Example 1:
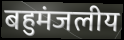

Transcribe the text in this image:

बहुमंजलीय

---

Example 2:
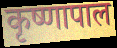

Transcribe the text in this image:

कृष्णापाल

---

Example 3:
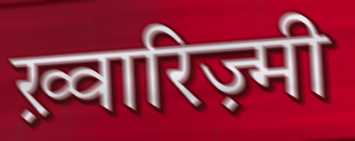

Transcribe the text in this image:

ख़्वारिज़्मी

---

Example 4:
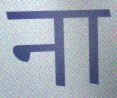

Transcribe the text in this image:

ना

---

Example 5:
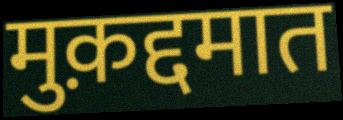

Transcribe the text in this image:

मुक़द्दमात